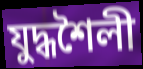
যুদ্ধশৈলী